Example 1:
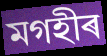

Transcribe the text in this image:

মগহীৰ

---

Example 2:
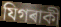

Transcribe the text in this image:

যিগৰাকী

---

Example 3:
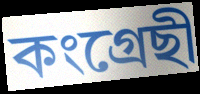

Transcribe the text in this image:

কংগ্ৰেছী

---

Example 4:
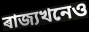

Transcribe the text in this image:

ৰাজ্যখনেও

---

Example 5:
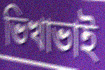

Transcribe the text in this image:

ভিখাভাই